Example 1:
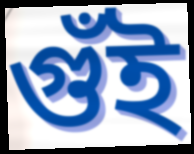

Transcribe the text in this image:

গুঁই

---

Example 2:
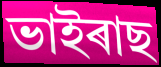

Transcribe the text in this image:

ভাইৰাছ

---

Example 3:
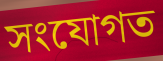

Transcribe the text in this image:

সংযোগত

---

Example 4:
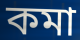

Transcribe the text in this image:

কমা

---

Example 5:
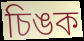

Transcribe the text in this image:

চিঙক